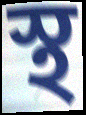
স্থ